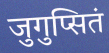
जुगुप्सितं